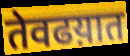
तेवढय़ात